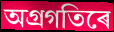
অগ্ৰগতিৰে